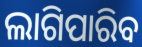
ଲାଗିପାରିବ